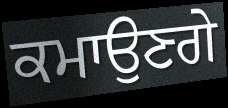
ਕਮਾਉਣਗੇ